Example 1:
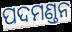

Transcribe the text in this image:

ପଦମଣ୍ଡନ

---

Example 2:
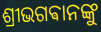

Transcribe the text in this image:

ଶ୍ରୀଭଗଵାନଙ୍କୁ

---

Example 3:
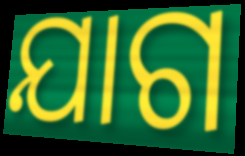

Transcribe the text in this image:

ଯାଗ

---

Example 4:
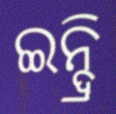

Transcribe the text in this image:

ଇନ୍ଦ୍ରି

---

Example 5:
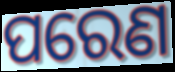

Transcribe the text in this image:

ପରେଣ